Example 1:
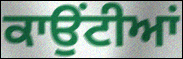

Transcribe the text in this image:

ਕਾਉਂਟੀਆਂ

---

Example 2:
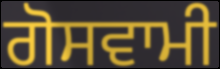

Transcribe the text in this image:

ਗੋਸਵਾਮੀ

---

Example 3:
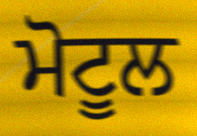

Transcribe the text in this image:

ਮੋਟੂਲ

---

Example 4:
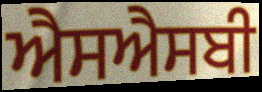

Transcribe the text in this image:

ਐਸਐਸਬੀ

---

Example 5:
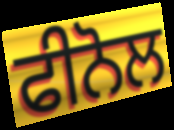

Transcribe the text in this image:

ਫੀਨੋਲ